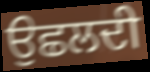
ਉਛਲਦੀ